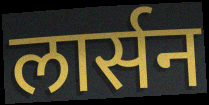
लार्सन